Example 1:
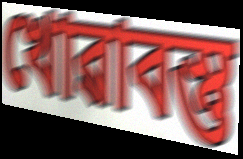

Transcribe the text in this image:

খোৱাবস্তু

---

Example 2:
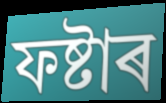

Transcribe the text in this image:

ফষ্টাৰ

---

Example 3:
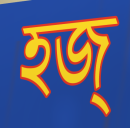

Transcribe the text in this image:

হজ্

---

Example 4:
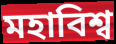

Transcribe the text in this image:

মহাবিশ্ব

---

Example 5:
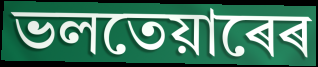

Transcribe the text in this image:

ভলতেয়াৰেৰ